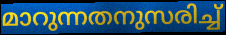
മാറുന്നതനുസരിച്ച്